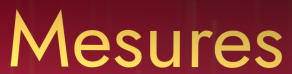
Mesures